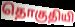
தொகுதியி